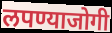
लपण्याजोगी